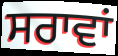
ਸਰਾਵਾਂ